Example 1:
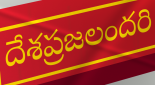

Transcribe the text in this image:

దేశప్రజలందరి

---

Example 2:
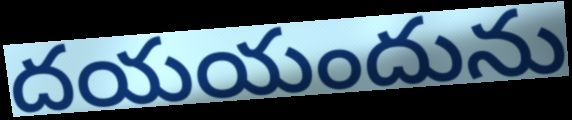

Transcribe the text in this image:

దయయందును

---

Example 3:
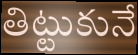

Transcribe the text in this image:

తిట్టుకునే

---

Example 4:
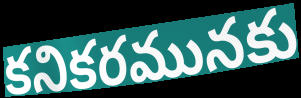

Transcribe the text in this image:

కనికరమునకు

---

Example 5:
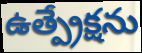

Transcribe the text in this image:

ఉత్ప్రేక్షను